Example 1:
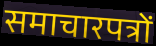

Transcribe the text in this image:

समाचारपत्रों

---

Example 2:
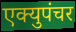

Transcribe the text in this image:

एक्युपंचर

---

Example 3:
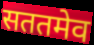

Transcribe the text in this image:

सततमेव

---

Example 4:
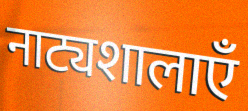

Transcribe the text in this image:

नाट्यशालाएँ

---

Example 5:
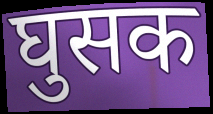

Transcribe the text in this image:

घुसक